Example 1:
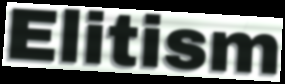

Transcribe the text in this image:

Elitism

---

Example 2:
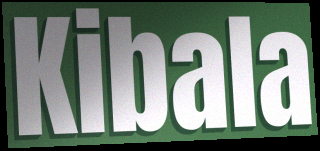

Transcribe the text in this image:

Kibala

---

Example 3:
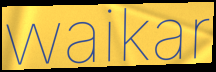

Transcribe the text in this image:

waikar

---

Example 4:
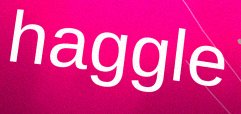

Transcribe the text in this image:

haggle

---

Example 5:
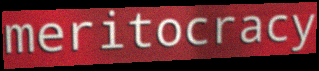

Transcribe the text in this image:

meritocracy